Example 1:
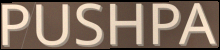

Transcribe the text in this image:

PUSHPA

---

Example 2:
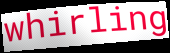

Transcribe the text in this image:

whirling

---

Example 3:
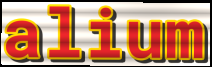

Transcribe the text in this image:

alium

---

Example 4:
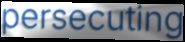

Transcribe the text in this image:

persecuting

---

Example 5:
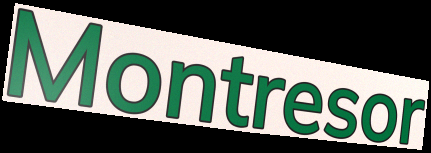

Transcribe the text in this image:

Montresor